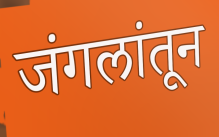
जंगलांतून